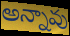
అన్నావు